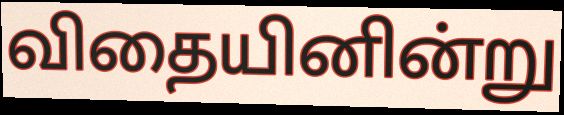
விதையினின்று